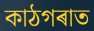
কাঠগৰাত